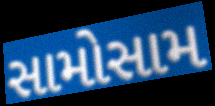
સામોસામ